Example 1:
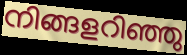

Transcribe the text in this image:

നിങ്ങളറിഞ്ഞു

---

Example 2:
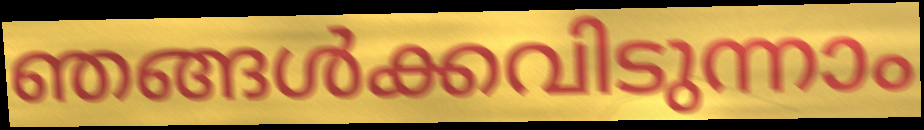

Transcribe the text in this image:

ഞങ്ങൾക്കവിടുന്നാം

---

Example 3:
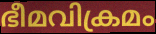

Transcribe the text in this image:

ഭീമവിക്രമം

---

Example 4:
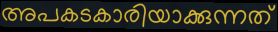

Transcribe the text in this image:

അപകടകാരിയാക്കുന്നത്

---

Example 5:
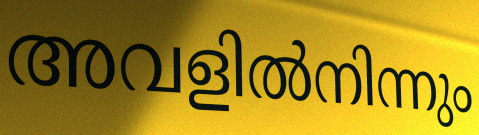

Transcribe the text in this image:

അവളിൽനിന്നും